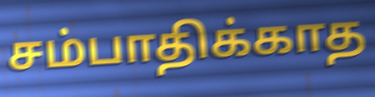
சம்பாதிக்காத